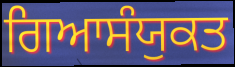
ਗਿਆਸੰਯੁਕਤ